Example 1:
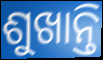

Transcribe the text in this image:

ଶୁଖାନ୍ତି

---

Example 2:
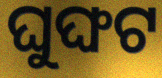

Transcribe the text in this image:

ଘୁଙ୍ଘଟ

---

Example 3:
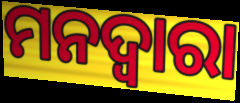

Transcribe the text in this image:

ମନଦ୍ଵାରା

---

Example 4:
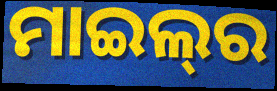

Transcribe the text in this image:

ମାଇଲ୍‍ର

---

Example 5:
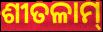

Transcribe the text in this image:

ଶୀତଳାମ୍